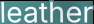
leather